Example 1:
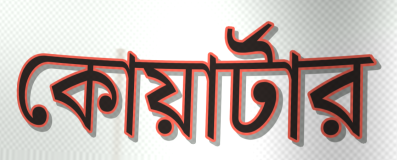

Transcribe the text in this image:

কোয়ার্টার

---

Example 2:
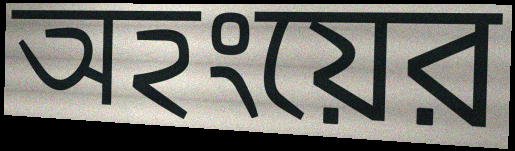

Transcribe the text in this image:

অহংয়ের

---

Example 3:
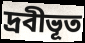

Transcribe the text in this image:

দ্রবীভূত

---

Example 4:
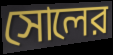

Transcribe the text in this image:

সোলের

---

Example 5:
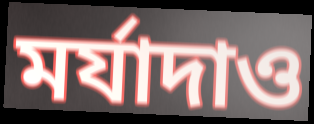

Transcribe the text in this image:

মর্যাদাও